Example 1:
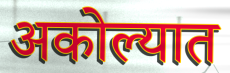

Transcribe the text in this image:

अकोल्यात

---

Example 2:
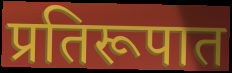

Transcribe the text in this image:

प्रतिरूपात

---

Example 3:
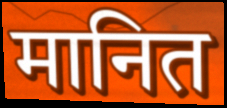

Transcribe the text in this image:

मानित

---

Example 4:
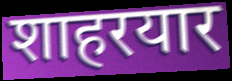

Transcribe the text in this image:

शाहरयार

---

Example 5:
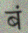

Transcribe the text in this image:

बं